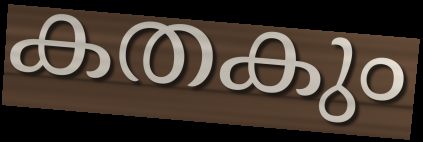
കതകും